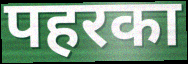
पहरका